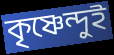
কৃষ্ণেন্দুই